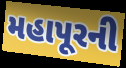
મહાપૂરની